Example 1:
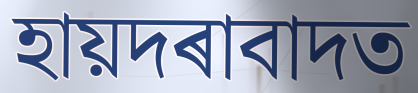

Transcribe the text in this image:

হায়দৰাবাদত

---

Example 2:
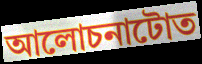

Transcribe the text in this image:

আলোচনাটোত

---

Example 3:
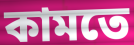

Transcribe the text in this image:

কামতে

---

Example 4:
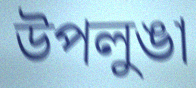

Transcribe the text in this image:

উপলুঙা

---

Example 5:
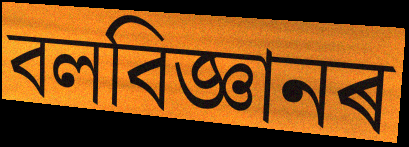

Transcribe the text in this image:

বলবিজ্ঞানৰ